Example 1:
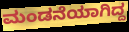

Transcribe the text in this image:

ಮಂಡನೆಯಾಗಿದ್ದ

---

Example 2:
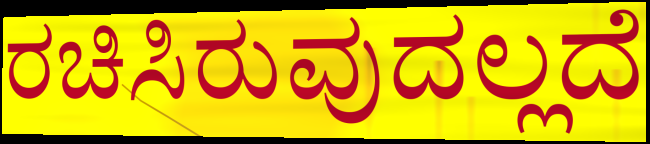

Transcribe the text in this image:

ರಚಿಸಿರುವುದಲ್ಲದೆ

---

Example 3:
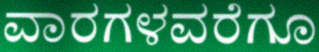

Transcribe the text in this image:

ವಾರಗಳವರೆಗೂ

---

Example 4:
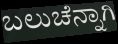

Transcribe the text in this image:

ಬಲುಚೆನ್ನಾಗಿ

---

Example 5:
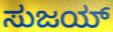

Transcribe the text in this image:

ಸುಜಯ್